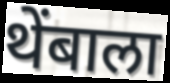
थेंबाला